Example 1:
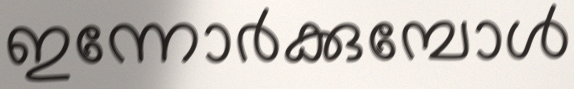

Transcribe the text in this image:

ഇന്നോർക്കുമ്പോൾ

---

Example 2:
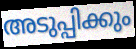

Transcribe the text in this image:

അടുപ്പിക്കും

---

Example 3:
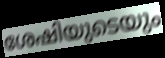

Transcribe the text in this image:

ശേഷിയുടെയും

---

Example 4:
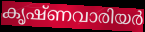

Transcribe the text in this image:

കൃഷ്ണവാരിയർ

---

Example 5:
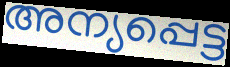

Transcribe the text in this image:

അന്യപ്പെട്ട